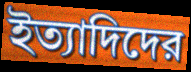
ইত্যাদিদের